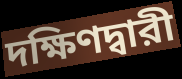
দক্ষিণদ্বারী